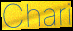
Chari